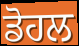
ਡੋਹਲ